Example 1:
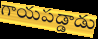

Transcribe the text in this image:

గాయపడ్డాడు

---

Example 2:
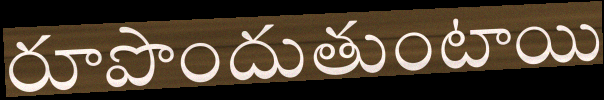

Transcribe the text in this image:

రూపొందుతుంటాయి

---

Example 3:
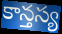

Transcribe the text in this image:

కాన్తస్య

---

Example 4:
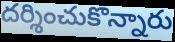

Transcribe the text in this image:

దర్శించుకొన్నారు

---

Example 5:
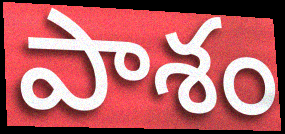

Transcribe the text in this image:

పాశం